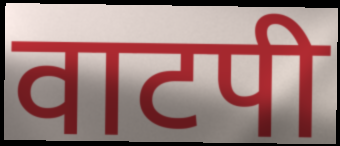
वाटपी